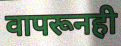
वापरूनही